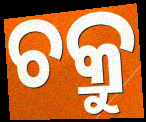
ଚକ୍ରୁ